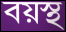
বয়স্থ